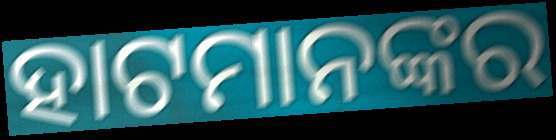
ହାଟମାନଙ୍କର